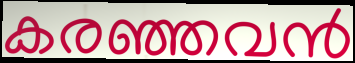
കരഞ്ഞവൻ